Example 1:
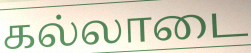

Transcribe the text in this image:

கல்லாடை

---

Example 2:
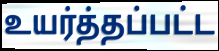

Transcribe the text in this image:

உயர்த்தப்பட்ட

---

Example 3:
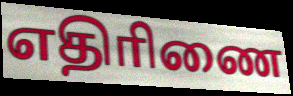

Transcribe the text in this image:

எதிரிணை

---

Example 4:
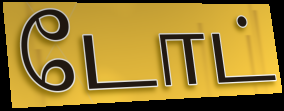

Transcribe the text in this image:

டோட்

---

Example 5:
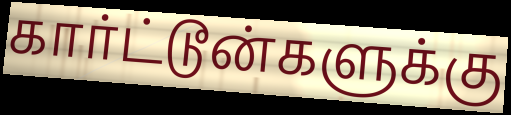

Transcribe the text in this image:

கார்ட்டூன்களுக்கு